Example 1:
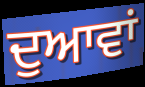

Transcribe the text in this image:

ਦੁਆਵਾਂ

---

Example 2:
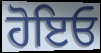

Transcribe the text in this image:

ਹੋਇਓ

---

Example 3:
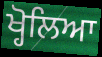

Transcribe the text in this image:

ਖ੍ਹੋਲਿਆ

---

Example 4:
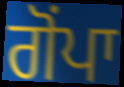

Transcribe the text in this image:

ਗੋਂਪਾ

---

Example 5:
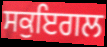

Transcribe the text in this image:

ਸਕੁਇਗਲ